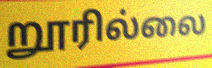
றூரில்லை